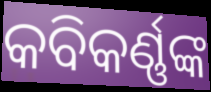
କବିକର୍ଣ୍ଣଙ୍କ